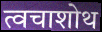
त्वचाशोथ